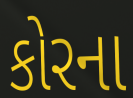
કોરના